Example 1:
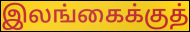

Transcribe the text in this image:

இலங்கைக்குத்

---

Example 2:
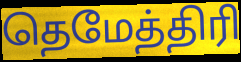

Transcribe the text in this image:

தெமேத்திரி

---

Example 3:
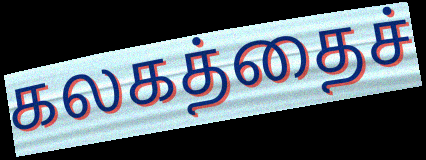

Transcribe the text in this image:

கலகத்தைச்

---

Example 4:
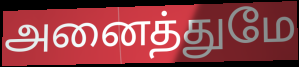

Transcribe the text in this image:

அனைத்துமே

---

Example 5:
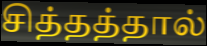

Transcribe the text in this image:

சித்தத்தால்